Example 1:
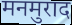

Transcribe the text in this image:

मनमुराद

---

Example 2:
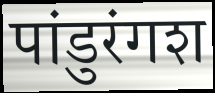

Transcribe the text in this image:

पांडुरंगश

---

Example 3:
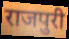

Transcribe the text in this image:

राजपुरी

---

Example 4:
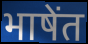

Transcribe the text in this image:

भाषेंत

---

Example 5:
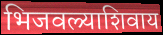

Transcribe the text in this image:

भिजवल्याशिवाय